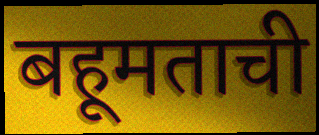
बहूमताची